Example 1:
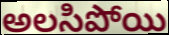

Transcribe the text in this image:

అలసిపోయి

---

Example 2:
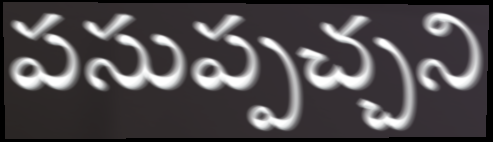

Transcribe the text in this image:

పసుప్పచ్చని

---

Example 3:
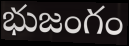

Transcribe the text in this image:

భుజంగం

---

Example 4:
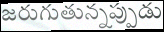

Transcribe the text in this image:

జరుగుతున్నప్పుడు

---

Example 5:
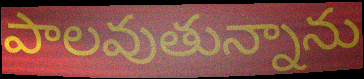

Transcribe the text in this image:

పాలవుతున్నాను